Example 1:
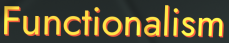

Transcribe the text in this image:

Functionalism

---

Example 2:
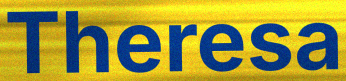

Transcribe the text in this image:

Theresa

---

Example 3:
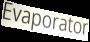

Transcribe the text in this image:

Evaporator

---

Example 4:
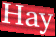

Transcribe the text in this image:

Hay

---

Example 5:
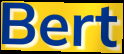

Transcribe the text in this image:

Bert